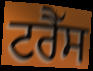
ਟਰੈੱਸ